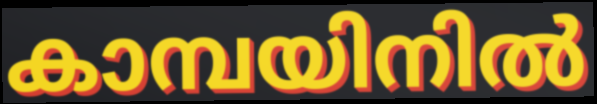
കാമ്പയിനിൽ